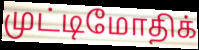
முட்டிமோதிக்